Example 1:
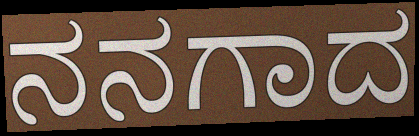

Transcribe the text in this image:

ನನಗಾದ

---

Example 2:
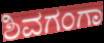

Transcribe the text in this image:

ಶಿವಗಂಗಾ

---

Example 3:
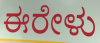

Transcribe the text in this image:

ಈರೇಳು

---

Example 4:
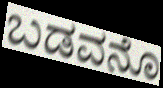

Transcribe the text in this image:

ಬಡವನೊ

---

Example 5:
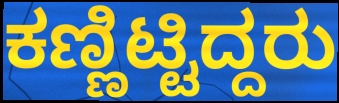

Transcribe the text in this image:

ಕಣ್ಣಿಟ್ಟಿದ್ದರು